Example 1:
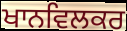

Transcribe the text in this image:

ਖਾਨਵਿਲਕਰ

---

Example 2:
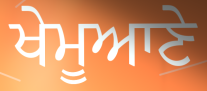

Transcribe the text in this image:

ਖੇਮੂਆਣੇ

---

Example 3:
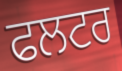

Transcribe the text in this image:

ਫਲਟਰ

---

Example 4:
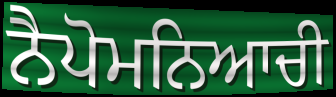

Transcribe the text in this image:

ਨੈਪੋਮਨਿਆਚੀ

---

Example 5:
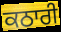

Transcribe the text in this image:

ਕਠਾਰੀ